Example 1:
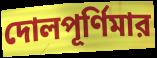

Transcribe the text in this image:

দোলপূর্ণিমার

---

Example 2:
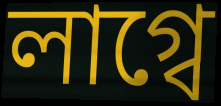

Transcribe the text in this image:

লাগ্বে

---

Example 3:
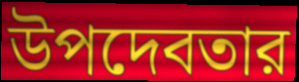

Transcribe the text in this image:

উপদেবতার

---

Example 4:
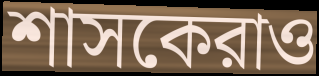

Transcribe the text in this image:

শাসকেরাও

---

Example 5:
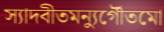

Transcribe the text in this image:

স্যাদবীতমন্যুর্গৌতমো